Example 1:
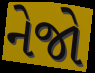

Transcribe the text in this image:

નેજો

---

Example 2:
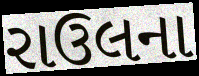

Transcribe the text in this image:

રાઉલના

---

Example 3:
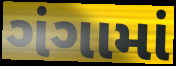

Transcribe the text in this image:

ગંગામાં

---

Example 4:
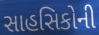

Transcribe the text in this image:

સાહસિકોની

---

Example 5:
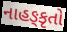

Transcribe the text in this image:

નાહઙ્કૃતો